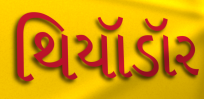
થિયૉડૉર